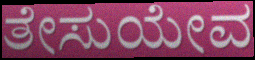
ತೇಸುಯೇವ